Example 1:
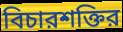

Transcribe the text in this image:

বিচারশক্তির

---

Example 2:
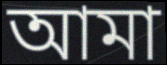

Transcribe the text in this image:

আমা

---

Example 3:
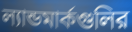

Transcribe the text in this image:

ল্যান্ডমার্কগুলির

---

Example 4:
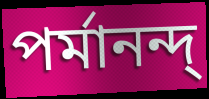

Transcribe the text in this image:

পর্মানন্দ্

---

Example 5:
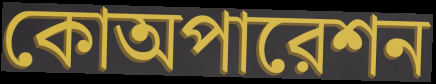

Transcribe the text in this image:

কোঅপারেশন